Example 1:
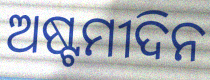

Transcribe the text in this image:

ଅଷ୍ଟମୀଦିନ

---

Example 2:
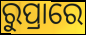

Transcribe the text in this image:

ରୁପ୍ରାରେ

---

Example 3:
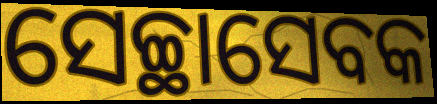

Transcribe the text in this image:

ସେଚ୍ଛାସେବକ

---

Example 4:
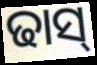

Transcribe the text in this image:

ଢାସ୍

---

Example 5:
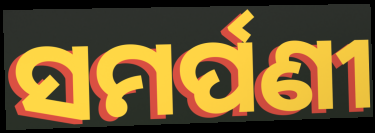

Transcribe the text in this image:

ସମର୍ପଣୀ